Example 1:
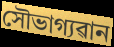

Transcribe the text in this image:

সৌভাগ্যৱান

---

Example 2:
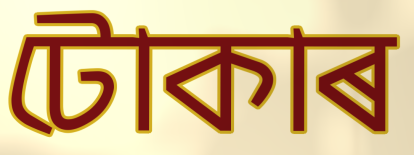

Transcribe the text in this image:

টোকাৰ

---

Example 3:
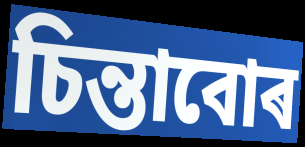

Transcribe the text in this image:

চিন্তাবোৰ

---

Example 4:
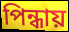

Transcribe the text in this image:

পিন্ধায়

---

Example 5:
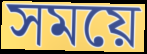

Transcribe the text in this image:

সময়ে